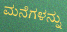
ಮನೆಗಳನ್ನು